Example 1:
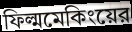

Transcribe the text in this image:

ফিল্মমেকিংয়ের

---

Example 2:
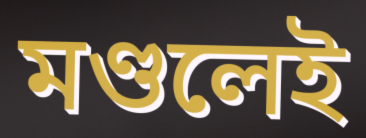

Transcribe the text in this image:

মণ্ডলেই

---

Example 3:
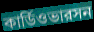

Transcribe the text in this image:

কার্ডিওভারসন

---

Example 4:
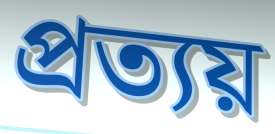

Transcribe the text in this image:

প্রত্যয়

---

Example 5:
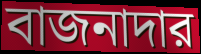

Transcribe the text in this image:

বাজনাদার